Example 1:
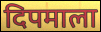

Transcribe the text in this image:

दिपमाला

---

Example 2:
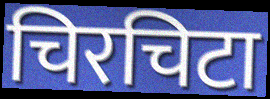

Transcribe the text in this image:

चिरचिटा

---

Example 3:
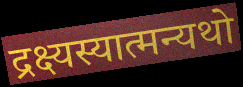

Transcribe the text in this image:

द्रक्ष्यस्यात्मन्यथो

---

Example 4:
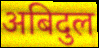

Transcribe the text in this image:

अबिदुल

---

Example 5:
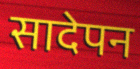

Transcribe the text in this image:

सादेपन